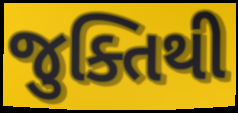
જુક્તિથી